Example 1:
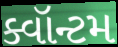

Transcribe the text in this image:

ક્વૉન્ટમ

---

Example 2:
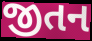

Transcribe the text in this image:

જીતન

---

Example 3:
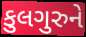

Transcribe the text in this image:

કુલગુરુને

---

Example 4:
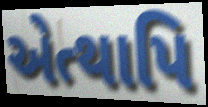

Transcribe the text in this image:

એત્થાપિ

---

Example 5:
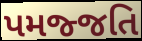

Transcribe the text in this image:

પમજ્જતિ